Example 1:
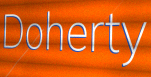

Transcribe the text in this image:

Doherty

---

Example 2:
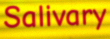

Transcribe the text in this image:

Salivary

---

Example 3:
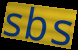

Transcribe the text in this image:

sbs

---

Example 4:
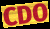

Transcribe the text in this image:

CDO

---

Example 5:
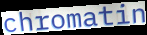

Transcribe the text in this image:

chromatin